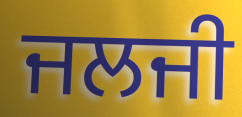
ਜਲਜੀ